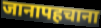
जानापहचाना